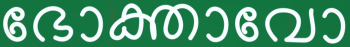
ഭോക്താവോ